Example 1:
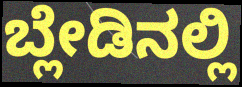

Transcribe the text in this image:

ಬ್ಲೇಡಿನಲ್ಲಿ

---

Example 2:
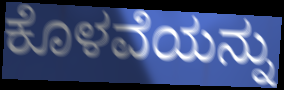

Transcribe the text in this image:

ಕೊಳವೆಯನ್ನು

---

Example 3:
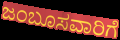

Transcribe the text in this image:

ಜಂಬೂಸವಾರಿಗೆ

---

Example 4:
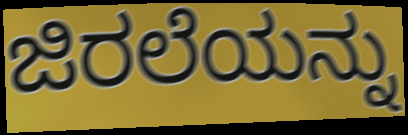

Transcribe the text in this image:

ಜಿರಲೆಯನ್ನು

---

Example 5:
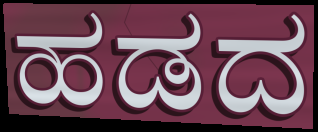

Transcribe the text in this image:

ಹಡದ